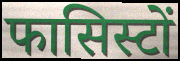
फासिस्टों